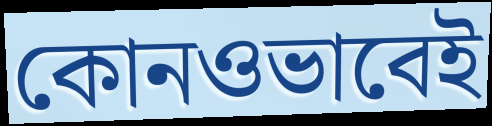
কোনওভাবেই